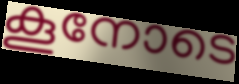
കൂനോടെ